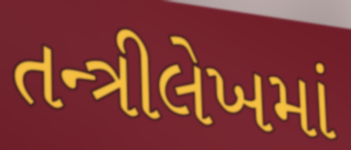
તન્ત્રીલેખમાં